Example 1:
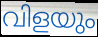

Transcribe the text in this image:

വിളയും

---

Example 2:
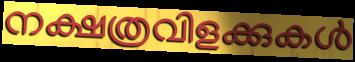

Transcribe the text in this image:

നക്ഷത്രവിളക്കുകൾ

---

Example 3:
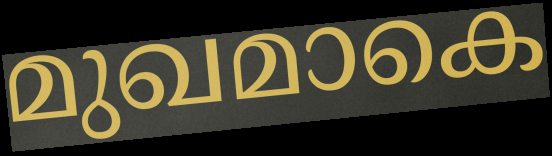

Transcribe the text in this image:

മുഖമാകെ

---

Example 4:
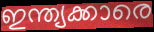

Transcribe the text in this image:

ഇന്ത്യക്കാരെ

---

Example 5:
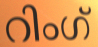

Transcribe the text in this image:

റിംഗ്